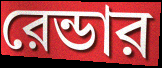
রেন্ডার